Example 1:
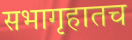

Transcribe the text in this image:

सभागृहातच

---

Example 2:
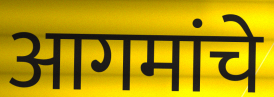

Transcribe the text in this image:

आगमांचे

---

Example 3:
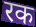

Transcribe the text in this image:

रक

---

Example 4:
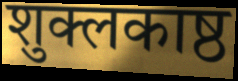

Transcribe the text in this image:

शुक्लकाष्ठ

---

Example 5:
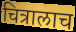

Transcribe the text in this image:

चित्रालाच